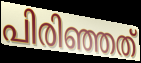
പിരിഞ്ഞത്